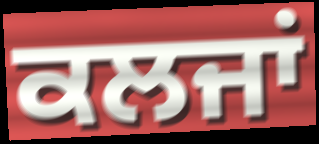
ਕਲਜਾਂ